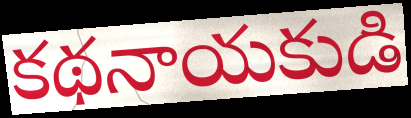
కథనాయకుడి